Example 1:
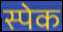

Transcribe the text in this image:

स्पेक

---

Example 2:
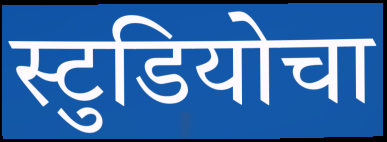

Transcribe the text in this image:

स्टुडियोचा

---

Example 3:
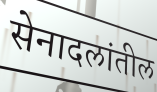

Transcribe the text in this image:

सेनादलांतील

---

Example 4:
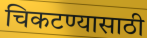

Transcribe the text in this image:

चिकटण्यासाठी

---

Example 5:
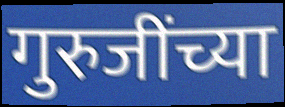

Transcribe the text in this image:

गुरुजींच्या